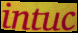
intuc